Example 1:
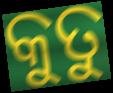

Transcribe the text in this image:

କୁତୁ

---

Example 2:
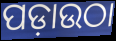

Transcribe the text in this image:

ପଡ଼ାଉଠା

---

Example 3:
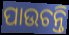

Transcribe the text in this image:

ପାଉଚନ୍ତି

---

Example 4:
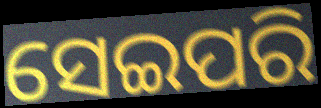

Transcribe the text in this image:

ସେଇପରି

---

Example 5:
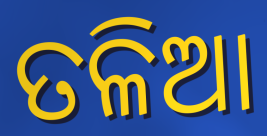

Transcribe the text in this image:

ତଳିଆ